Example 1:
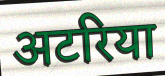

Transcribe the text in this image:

अटरिया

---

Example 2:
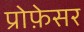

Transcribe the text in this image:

प्रोफ़ेसर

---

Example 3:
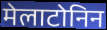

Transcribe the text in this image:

मेलाटोनिन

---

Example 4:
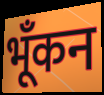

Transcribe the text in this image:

भूँकन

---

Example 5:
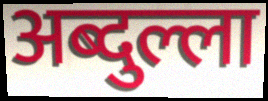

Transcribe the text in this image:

अब्दुल्ला